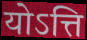
योऽत्ति